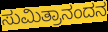
ಸುಮಿತ್ರಾನಂದನ